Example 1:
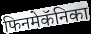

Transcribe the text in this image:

फिनमेकॅनिका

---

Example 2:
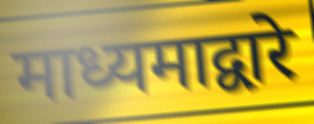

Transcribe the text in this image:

माध्यमाद्वारे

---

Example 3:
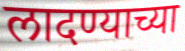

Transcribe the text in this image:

लादण्याच्या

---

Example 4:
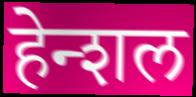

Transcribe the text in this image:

हेन्शल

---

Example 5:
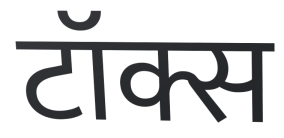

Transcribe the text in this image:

टॉक्स